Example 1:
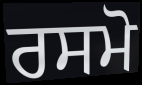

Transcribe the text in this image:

ਰਸਮੋ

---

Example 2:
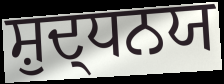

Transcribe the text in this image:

ਸ਼ੁਦ੍ਧਨਯ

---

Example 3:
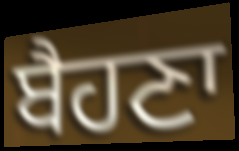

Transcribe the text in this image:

ਬੈਹਣਾ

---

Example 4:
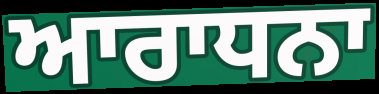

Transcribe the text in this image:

ਆਰਾਧਨਾ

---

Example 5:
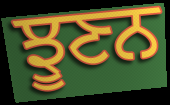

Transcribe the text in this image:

ਝੂਣਨ